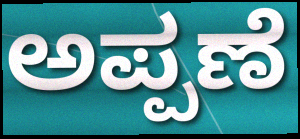
ಅಪ್ಪಣೆ